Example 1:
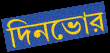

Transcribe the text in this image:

দিনভোর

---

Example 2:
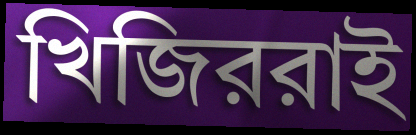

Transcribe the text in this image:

খিজিররাই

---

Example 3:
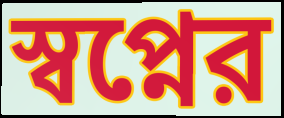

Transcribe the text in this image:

স্বপ্নের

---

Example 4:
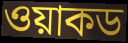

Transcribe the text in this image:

ওয়াকড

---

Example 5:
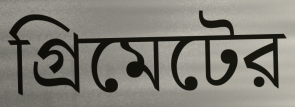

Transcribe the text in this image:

গ্রিমেটের